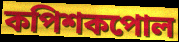
কপিশকপোল